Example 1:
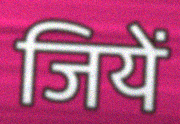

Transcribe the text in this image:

जियें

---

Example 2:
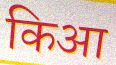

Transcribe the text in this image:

किआ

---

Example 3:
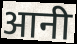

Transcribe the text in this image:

आनी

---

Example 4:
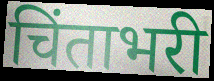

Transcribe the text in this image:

चिंताभरी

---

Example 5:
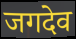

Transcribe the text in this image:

जगदेव